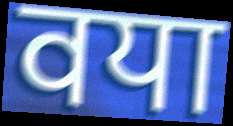
वया